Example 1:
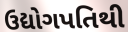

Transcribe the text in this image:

ઉદ્યોગપતિથી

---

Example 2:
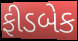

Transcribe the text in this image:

ફીડબેક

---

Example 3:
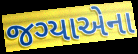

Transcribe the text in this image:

જગ્યાએના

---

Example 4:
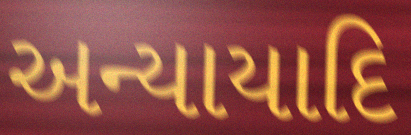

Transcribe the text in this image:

અન્યાયાદિ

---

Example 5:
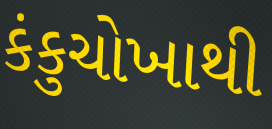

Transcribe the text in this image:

કંકુચોખાથી